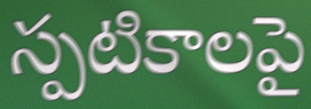
స్పటికాలపై